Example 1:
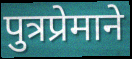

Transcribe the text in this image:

पुत्रप्रेमाने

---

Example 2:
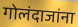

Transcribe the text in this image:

गोलंदाजांना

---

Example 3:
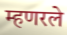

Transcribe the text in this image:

म्हणरले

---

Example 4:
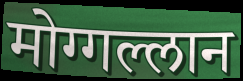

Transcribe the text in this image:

मोग्गल्लान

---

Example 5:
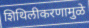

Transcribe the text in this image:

शिथिलीकरणामुळे